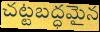
చట్టబద్ధమైన